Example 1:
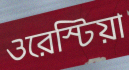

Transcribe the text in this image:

ওরেস্টিয়া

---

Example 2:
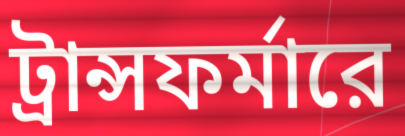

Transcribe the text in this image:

ট্রান্সফর্মারে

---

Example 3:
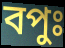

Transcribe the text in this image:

বপুঃ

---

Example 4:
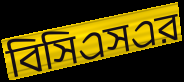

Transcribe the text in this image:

বিসিএসএর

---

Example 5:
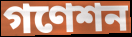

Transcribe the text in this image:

গণেশন